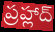
ప్రహ్లాద్